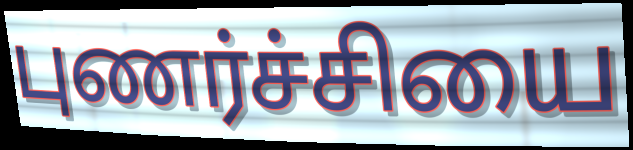
புணர்ச்சியை